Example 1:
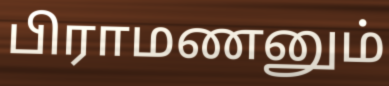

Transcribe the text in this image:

பிராமணனும்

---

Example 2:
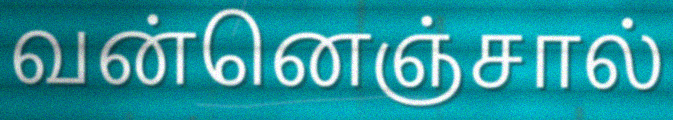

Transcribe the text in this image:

வன்னெஞ்சால்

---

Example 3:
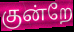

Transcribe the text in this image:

குன்றே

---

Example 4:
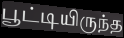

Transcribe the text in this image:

பூட்டியிருந்த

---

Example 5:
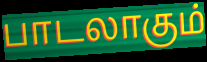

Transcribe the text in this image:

பாடலாகும்